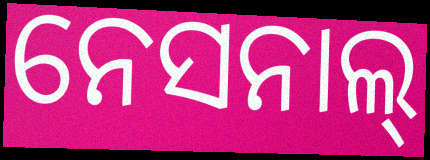
ନେସନାଲ୍